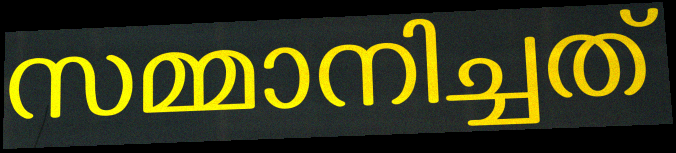
സമ്മാനിച്ചത്